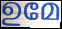
ഉമേ